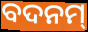
ବଦନମ୍